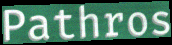
Pathros